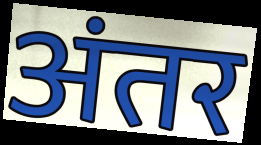
अंतर